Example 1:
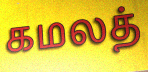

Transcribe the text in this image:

கமலத்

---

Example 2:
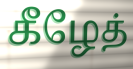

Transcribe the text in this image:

கீழேத்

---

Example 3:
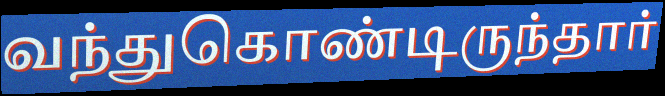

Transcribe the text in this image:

வந்துகொண்டிருந்தார்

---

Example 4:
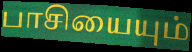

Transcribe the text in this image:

பாசியையும்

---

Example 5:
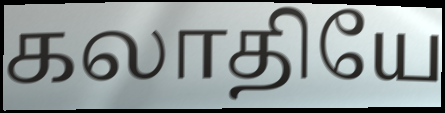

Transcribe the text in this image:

கலாதியே